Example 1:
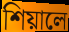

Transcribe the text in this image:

শিয়ালে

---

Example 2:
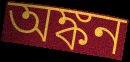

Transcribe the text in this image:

অঙ্কন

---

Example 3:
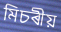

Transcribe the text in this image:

মিচৰীয়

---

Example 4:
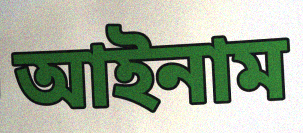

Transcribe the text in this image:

আইনাম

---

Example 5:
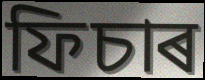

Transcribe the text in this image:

ফিচাৰ